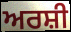
ਅਰਸ਼ੀ